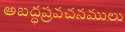
అబద్ధప్రవచనములు